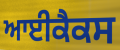
ਆਈਕੈਕਸ